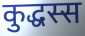
कुद्धस्स